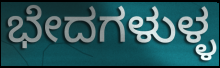
ಭೇದಗಳುಳ್ಳ